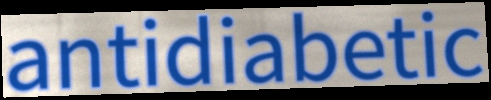
antidiabetic